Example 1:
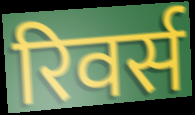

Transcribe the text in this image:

रिवर्स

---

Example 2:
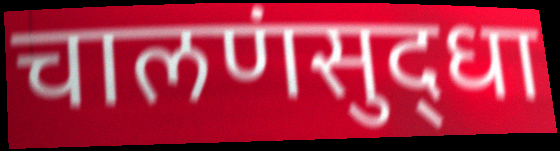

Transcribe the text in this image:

चालणंसुद्धा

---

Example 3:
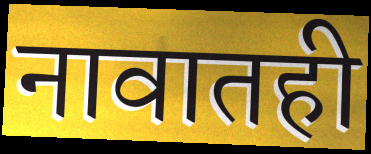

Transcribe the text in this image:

नावातही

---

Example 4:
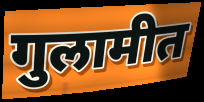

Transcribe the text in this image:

गुलामीत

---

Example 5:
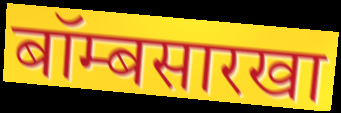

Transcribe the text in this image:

बॉम्बसारखा